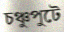
চঞ্চুপুটে